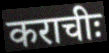
कराचीः